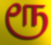
ரூ